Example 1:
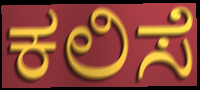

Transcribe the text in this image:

ಕಲಿಸೆ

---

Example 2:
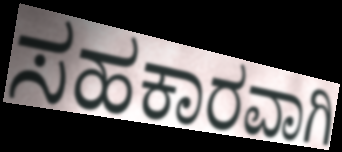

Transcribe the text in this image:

ಸಹಕಾರವಾಗಿ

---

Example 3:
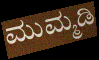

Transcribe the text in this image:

ಮುಮ್ಮಡಿ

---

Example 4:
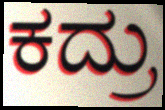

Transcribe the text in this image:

ಕದ್ರು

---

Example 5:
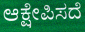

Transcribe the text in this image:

ಆಕ್ಷೇಪಿಸದೆ